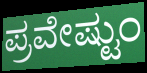
ಪ್ರವೇಷ್ಟುಂ